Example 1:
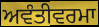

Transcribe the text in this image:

ਅਵੰਤੀਵਰਮਾ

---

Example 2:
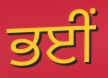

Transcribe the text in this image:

ਭਈਂ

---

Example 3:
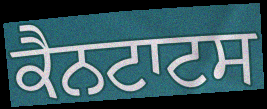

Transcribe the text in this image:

ਕੈਨਟਾਟਸ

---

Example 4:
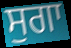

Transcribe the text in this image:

ਸੁਗਾ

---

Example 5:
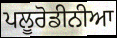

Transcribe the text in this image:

ਪਲੂਰੋਡੀਨੀਆ